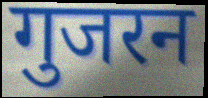
गुजरन